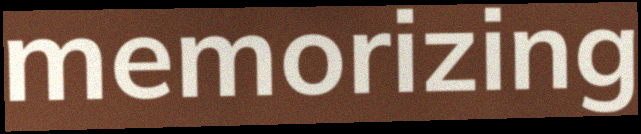
memorizing